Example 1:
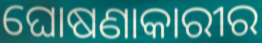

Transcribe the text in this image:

ଘୋଷଣାକାରୀର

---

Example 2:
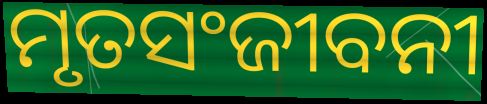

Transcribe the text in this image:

ମୃତସଂଜୀବନୀ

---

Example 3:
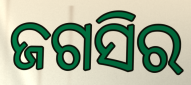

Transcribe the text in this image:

ଜଗସିର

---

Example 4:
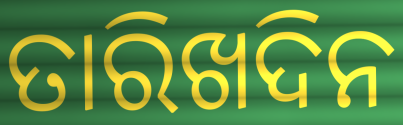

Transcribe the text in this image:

ତାରିଖଦିନ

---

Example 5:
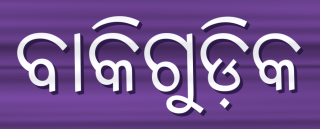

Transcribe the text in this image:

ବାକିଗୁଡ଼ିକ